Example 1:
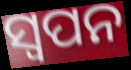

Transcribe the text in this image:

ସ୍ବପନ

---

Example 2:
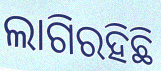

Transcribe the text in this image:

ଲାଗିରହିଛି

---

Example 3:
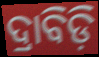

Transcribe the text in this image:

ଦ୍ରାବିଡ଼ି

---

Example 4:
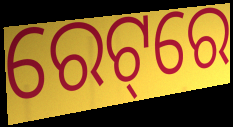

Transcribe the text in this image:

ରେଟ୍‌ରେ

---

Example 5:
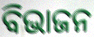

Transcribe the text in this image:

ବିଭାଜନ